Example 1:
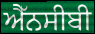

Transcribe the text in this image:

ਐੱਨਸੀਬੀ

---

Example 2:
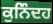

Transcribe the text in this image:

ਕੁਨਿੰਦਹ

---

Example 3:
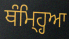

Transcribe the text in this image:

ਥੰਮ੍ਹ੍ਹਿਆ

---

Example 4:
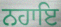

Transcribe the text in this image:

ਨਹਾਇ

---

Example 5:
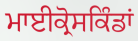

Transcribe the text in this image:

ਮਾਈਕ੍ਰੋਸਕਿੰਡਾਂ